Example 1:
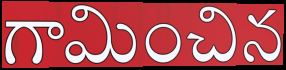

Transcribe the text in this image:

గామించిన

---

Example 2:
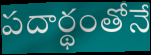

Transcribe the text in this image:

పదార్థంతోనే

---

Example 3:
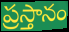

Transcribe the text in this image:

ప్రస్తానం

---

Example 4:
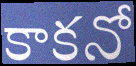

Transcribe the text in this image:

కాకనో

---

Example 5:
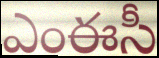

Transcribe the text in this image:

ఎంఈసీ